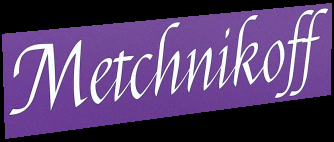
Metchnikoff